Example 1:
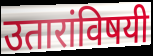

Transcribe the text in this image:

उतारांविषयी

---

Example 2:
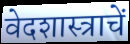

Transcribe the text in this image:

वेदशास्त्राचें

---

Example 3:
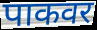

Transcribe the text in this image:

पाकवर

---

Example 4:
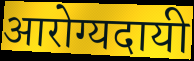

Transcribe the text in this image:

आरोग्यदायी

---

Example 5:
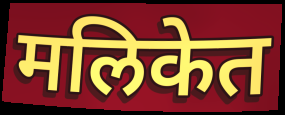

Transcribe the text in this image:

मलिकेत